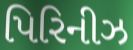
પિરિનીઝ